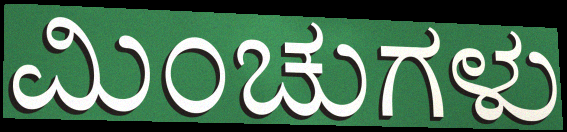
ಮಿಂಚುಗಳು